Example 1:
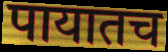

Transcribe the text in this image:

पायातच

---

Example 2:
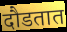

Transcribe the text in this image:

दौडतात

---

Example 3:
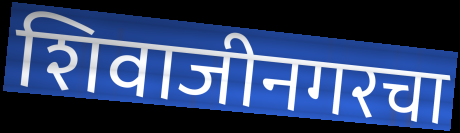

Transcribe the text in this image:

शिवाजीनगरचा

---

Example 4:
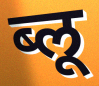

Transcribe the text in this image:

ब्लू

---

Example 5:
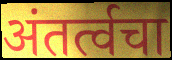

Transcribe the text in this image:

अंतर्त्वचा